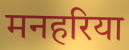
मनहरिया